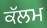
ਕੱਲਮ